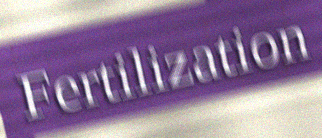
Fertilization